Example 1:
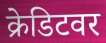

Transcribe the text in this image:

क्रेडिटवर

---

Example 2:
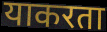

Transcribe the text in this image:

याकरता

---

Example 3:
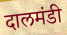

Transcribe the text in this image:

दालमंडी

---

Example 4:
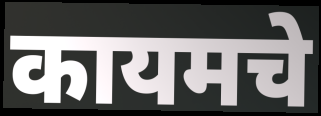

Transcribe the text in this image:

कायमचे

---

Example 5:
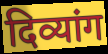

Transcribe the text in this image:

दिव्यांग